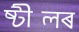
ষ্টীলৰ